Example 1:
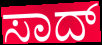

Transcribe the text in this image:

ಸಾದ್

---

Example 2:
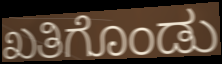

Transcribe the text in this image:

ಖತಿಗೊಂಡು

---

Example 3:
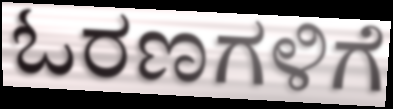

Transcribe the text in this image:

ಓರಣಗಳಿಗೆ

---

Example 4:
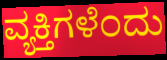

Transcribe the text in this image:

ವ್ಯಕ್ತಿಗಳೆಂದು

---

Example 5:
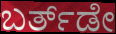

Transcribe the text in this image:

ಬರ್ತ್‌ಡೇ